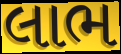
લાભ